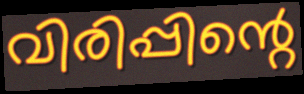
വിരിപ്പിന്റെ